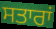
ਸਤਾਰਾਂ